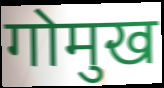
गोमुख